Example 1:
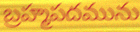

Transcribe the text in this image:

బ్రహ్మపదమును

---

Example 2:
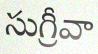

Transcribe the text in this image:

సుగ్రీవా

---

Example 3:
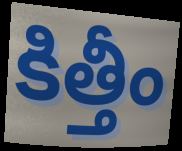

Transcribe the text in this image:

కిత్తీం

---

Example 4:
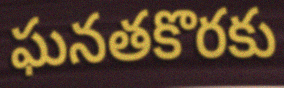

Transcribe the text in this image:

ఘనతకొరకు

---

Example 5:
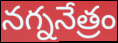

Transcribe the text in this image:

నగ్ననేత్రం